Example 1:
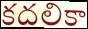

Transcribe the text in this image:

కదలికా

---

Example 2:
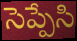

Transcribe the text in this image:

సెప్పేసి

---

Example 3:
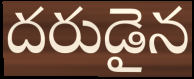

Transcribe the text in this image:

దరుడైన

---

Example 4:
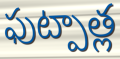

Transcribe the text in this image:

ఫుట్పాత్ల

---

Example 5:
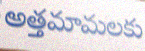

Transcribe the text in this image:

అత్తమామలకు